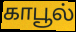
காபூல்